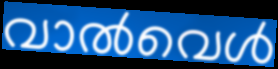
വാൽവെൾ